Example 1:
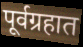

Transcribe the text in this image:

पूर्वग्रहात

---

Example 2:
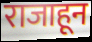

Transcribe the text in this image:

राजाहून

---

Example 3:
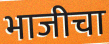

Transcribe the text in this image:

भाजीचा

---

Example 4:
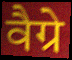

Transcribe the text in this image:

वैग्रे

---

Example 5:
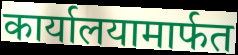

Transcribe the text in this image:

कार्यालयामार्फत